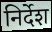
निर्देश